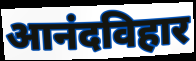
आनंदविहार